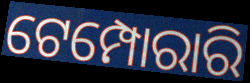
ଟେମ୍ପୋରାରି